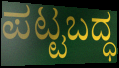
ಪಟ್ಟಬದ್ಧ